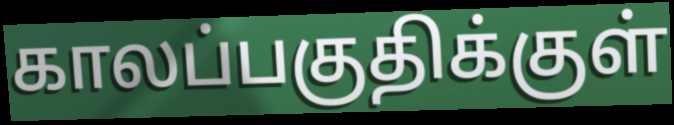
காலப்பகுதிக்குள்